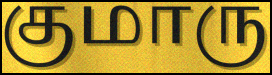
குமாரு